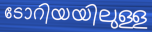
ടോറിയയിലുള്ള